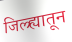
जिल्ह्यातून